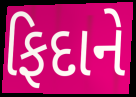
ફિદાને